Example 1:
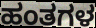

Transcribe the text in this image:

ಹಂತಗಳ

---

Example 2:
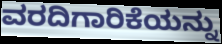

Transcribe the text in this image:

ವರದಿಗಾರಿಕೆಯನ್ನು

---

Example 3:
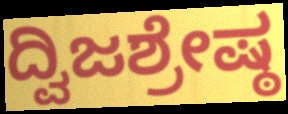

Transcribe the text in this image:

ದ್ವಿಜಶ್ರೇಷ್ಠ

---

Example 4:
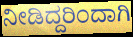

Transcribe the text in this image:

ನೀಡಿದ್ದರಿಂದಾಗಿ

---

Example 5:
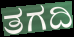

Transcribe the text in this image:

ತಗದಿ